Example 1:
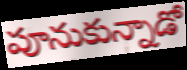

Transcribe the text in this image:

పూనుకున్నాడో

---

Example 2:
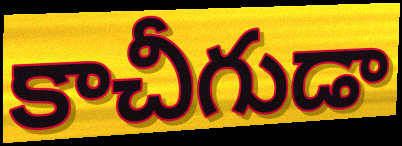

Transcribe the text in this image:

కాచీగుడా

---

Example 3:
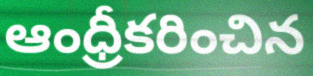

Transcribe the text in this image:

ఆంధ్రీకరించిన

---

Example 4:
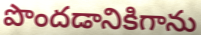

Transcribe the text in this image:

పొందడానికిగాను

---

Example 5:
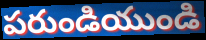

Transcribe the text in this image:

పరుండియుండి